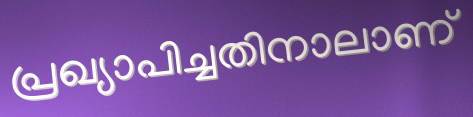
പ്രഖ്യാപിച്ചതിനാലാണ്